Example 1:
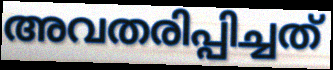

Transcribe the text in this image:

അവതരിപ്പിച്ചത്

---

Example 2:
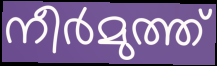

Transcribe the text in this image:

നീർമുത്ത്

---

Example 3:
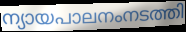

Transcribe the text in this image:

ന്യായപാലനംനടത്തി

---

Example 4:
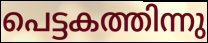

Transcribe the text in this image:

പെട്ടകത്തിന്നു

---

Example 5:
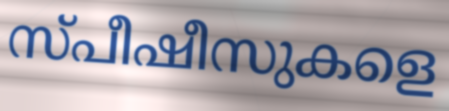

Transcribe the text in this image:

സ്പീഷീസുകളെ